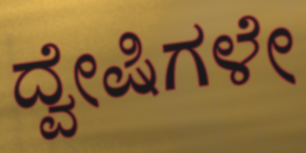
ದ್ವೇಷಿಗಳೇ